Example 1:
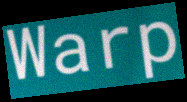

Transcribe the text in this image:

Warp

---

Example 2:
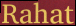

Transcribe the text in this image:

Rahat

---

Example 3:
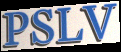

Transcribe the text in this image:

PSLV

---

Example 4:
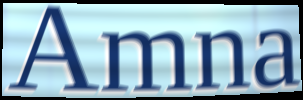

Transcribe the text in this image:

Amna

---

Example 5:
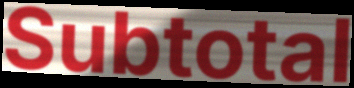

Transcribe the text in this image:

Subtotal